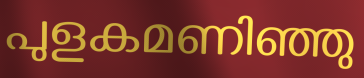
പുളകമണിഞ്ഞു